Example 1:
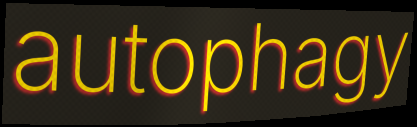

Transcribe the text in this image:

autophagy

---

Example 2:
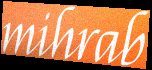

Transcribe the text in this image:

mihrab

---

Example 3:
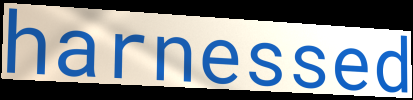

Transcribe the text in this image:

harnessed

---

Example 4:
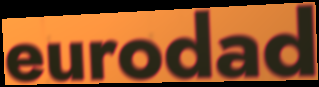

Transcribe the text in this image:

eurodad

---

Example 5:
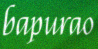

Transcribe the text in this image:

bapurao